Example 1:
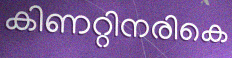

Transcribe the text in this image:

കിണറ്റിനരികെ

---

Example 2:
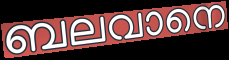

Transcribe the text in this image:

ബലവാനെ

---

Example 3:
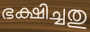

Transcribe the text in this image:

ഭക്ഷിച്ചതു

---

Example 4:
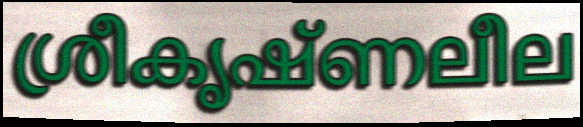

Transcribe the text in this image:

ശ്രീകൃഷ്ണലീല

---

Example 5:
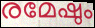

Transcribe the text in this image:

രമേഷും